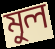
মুল